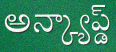
అన్క్యాప్డ్